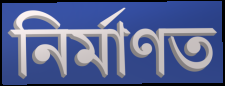
নিৰ্মাণত